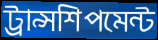
ট্রান্সশিপমেন্ট